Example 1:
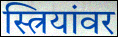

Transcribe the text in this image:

स्त्रियांवर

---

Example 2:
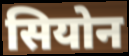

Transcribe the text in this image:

सियोन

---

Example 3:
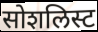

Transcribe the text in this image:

सोशलिस्ट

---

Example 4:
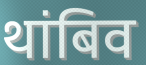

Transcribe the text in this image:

थांबिव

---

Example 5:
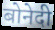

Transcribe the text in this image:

बोनेदी